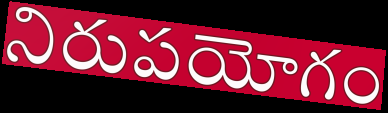
నిరుపయోగం